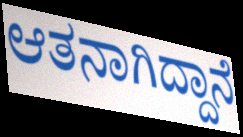
ಆತನಾಗಿದ್ದಾನೆ